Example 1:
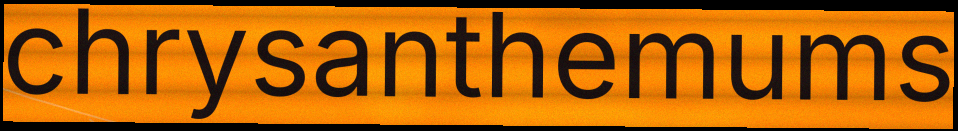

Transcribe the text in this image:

chrysanthemums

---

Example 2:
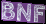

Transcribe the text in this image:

BNF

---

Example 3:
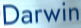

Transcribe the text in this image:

Darwin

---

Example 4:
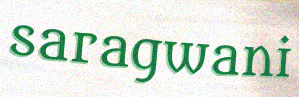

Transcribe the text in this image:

saragwani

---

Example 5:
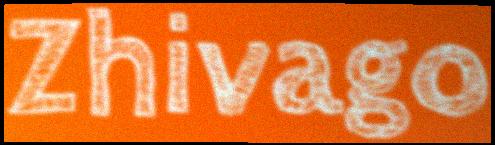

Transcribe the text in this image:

Zhivago